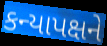
કન્યાપક્ષને